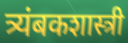
त्र्यंबकशास्त्री